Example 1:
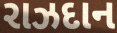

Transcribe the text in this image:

રાઝદાન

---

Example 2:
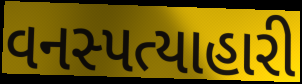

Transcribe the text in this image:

વનસ્પત્યાહારી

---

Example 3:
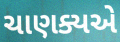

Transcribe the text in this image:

ચાણક્યએ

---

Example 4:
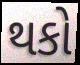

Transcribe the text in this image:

થકો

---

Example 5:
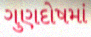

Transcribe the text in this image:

ગુણદોષમાં